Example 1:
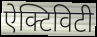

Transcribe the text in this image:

ऐक्टिविटी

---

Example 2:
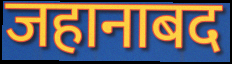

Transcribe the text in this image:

जहानाबद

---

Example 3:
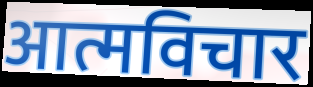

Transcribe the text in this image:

आत्मविचार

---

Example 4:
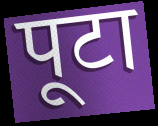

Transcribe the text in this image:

पूटा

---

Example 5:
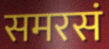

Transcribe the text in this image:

समरसं